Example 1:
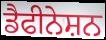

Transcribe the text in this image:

ਡੈਫੀਨੇਸ਼ਨ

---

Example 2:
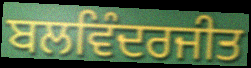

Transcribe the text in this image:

ਬਲਵਿੰਦਰਜੀਤ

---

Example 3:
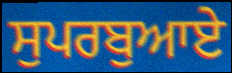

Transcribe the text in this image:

ਸੁਪਰਬੁਆਏ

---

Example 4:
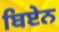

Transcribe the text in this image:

ਬਿਏਨ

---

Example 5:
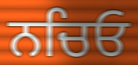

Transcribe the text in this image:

ਨਚਿਓ